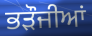
ਭੜੌਜੀਆਂ